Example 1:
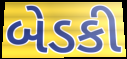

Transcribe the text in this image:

બેડકી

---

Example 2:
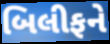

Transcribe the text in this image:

બિલીફને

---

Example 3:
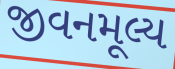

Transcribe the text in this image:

જીવનમૂલ્ય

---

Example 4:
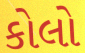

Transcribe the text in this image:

કોલો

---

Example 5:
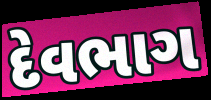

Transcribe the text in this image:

દેવભાગ